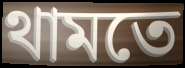
থামতে